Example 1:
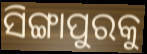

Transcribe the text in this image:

ସିଙ୍ଗାପୁରକୁ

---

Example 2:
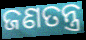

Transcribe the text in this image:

ଜଣତନ୍ତ୍ର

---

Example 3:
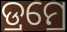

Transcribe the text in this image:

ଡ୍ରମ୍ରେ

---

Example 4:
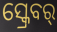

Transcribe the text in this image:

ସ୍କ୍ରେବର୍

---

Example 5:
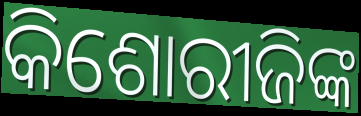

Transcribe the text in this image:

କିଶୋରୀଜିଙ୍କ